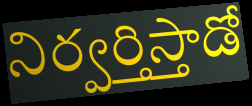
నిర్వర్తిస్తాడో